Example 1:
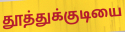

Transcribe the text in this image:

தூத்துக்குடியை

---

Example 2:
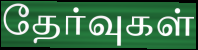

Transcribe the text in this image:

தேர்வுகள்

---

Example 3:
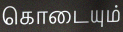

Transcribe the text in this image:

கொடையும்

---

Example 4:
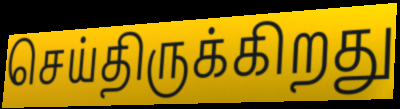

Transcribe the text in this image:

செய்திருக்கிறது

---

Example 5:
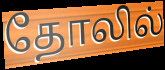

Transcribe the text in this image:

தோலில்